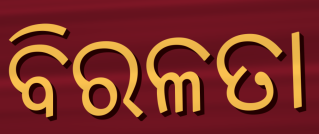
ବିରଳତା